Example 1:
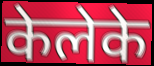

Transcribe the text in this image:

केलेके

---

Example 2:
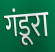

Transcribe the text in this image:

गंडूरा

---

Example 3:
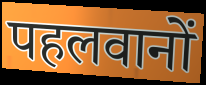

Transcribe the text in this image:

पहलवानों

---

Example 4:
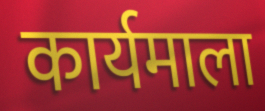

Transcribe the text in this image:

कार्यमाला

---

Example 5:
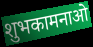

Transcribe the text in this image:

शुभकामनाओ